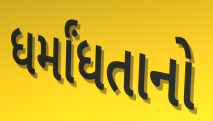
ધર્માંધતાનો